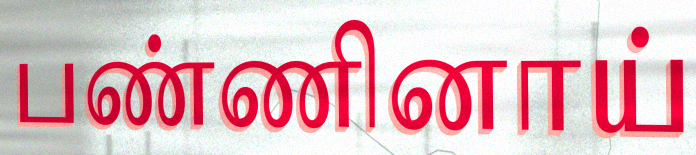
பண்ணினாய்